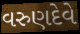
વરુણદેવે